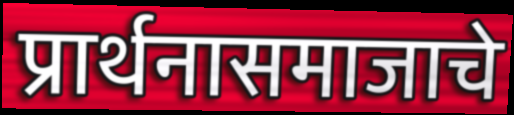
प्रार्थनासमाजाचे